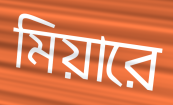
মিয়ারে